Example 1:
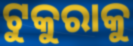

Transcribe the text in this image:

ଟୁକୁରାକୁ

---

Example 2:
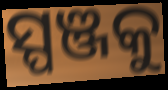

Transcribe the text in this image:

ସ୍ପଞ୍ଜକୁ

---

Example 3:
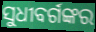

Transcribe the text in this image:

ସୁଧୀବର୍ଗଙ୍କର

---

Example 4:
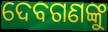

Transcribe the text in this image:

ଦେବଗଣଙ୍କୁ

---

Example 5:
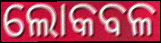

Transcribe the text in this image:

ଲୋକବଳ